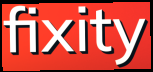
fixity